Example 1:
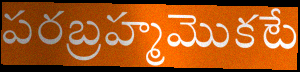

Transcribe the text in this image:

పరబ్రహ్మమొకటే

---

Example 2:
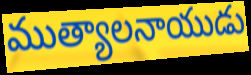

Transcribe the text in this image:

ముత్యాలనాయుడు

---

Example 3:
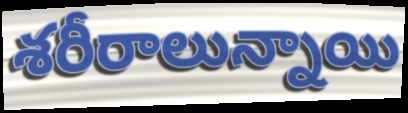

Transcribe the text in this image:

శరీరాలున్నాయి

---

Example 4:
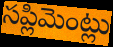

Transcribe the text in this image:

సప్లిమెంట్లు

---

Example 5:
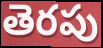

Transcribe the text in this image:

తెరపు